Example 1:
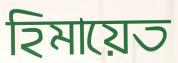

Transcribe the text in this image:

হিমায়েত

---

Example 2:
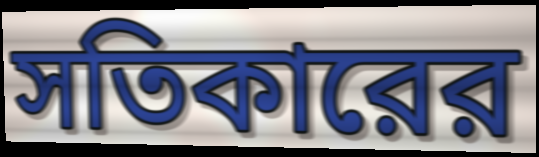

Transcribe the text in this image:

সতিকারের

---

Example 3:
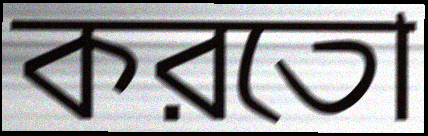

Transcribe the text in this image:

করতো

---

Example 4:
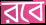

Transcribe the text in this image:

রবে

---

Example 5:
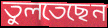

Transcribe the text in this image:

তুলতেছেন